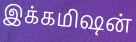
இக்கமிஷன்